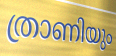
ത്രാണിയും